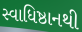
સ્વાધિષ્ઠાનથી